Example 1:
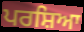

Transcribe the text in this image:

ਪਰਸ਼ਿਆ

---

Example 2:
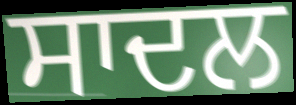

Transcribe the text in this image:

ਸਾਦਲ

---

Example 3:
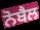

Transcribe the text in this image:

ਨੋਬੈਲ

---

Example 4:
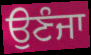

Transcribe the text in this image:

ਉਣੰਜਾ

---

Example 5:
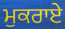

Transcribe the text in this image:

ਮੁਕਰਾਏ